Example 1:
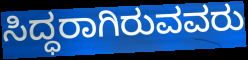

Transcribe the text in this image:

ಸಿದ್ಧರಾಗಿರುವವರು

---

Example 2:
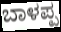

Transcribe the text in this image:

ಬಾಳಪ್ಪ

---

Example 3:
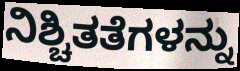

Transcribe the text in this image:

ನಿಶ್ಚಿತತೆಗಳನ್ನು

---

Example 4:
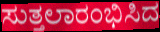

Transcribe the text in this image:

ಸುತ್ತಲಾರಂಭಿಸಿದ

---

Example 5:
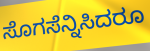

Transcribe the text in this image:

ಸೊಗಸೆನ್ನಿಸಿದರೂ